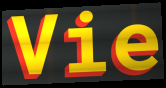
Vie